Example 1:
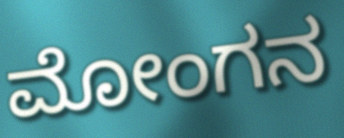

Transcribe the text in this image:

ಮೋಂಗನ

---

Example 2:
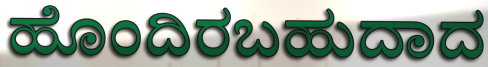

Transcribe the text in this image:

ಹೊಂದಿರಬಹುದಾದ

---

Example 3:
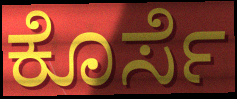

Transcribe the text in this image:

ಕೊರ್ಸೆ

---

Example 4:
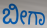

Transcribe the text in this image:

ಬೀಗಾ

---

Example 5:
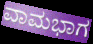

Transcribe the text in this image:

ವಾಮಭಾಗ